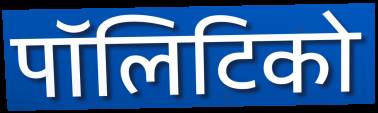
पॉलिटिको